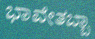
ಭಾವೇತಬ್ಬಾ